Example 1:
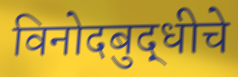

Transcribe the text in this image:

विनोदबुद्धीचे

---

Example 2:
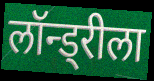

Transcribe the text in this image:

लॉन्ड्रीला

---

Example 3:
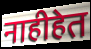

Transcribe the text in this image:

नाहीहेत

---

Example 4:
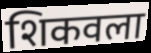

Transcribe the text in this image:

शिकवला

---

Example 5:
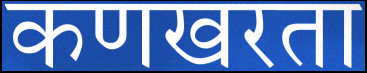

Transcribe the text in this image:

कणखरता